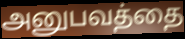
அனுபவத்தை